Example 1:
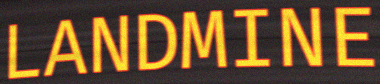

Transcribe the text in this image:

LANDMINE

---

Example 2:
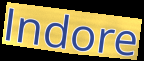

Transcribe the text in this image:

Indore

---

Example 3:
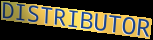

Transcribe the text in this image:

DISTRIBUTOR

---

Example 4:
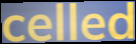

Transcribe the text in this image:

celled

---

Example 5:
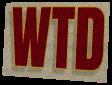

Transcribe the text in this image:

WTD